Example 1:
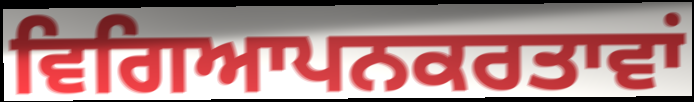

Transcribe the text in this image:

ਵਿਗਿਆਪਨਕਰਤਾਵਾਂ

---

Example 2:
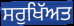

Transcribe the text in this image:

ਸਰੁਖਿੱਅਤ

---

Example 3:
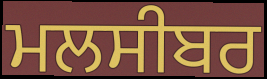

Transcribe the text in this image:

ਮਲਸੀਬਰ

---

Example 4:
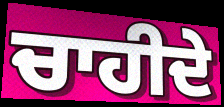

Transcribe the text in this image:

ਚਾਹੀਦੇ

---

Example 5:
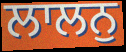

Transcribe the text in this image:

ਲਾਲਨੁ